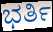
ಭರ್ತಿ